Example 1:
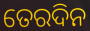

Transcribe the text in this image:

ତେରଦିନ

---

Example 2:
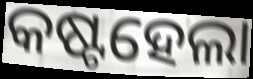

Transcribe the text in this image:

କଷ୍ଟହେଲା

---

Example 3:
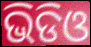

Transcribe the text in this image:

ଭିଡିଓ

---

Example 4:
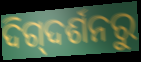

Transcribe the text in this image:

ଦିଗ୍‌ଦର୍ଶନରୁ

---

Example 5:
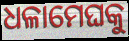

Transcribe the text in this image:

ଧଳାମେଘକୁ